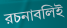
রচনাবলিই